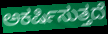
ಅಕರ್ಷಿಸುತ್ತದೆ